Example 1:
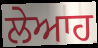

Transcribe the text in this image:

ਲੇਆਹ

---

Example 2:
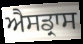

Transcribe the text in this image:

ਐਸਡ੍ਰਾਸ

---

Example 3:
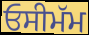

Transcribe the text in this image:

ਓਸੀਮੱਮ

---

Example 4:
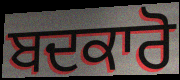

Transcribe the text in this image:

ਬਦਕਾਰੋ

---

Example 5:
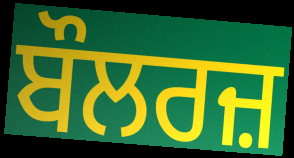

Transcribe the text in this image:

ਬੌਲਰਜ਼